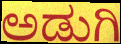
ಅಡುಗಿ